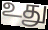
உது